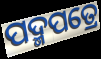
ପଦ୍ମପତ୍ରେ